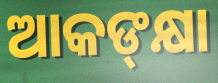
ଆକଙ୍‍କ୍ଷା